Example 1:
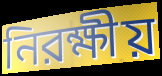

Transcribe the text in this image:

নিরক্ষীয়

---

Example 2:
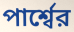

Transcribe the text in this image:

পার্শ্বের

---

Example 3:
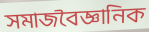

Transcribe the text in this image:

সমাজবৈজ্ঞানিক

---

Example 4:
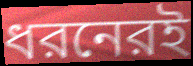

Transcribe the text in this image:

ধরনেরই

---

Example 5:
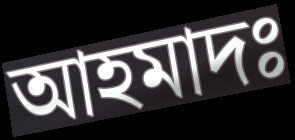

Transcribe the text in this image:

আহমাদঃ